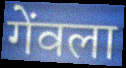
गेंवला